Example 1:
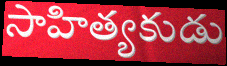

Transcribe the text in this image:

సాహిత్యకుడు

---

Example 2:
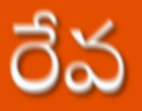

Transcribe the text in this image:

రేవ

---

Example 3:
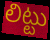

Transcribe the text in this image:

లిట్టు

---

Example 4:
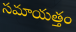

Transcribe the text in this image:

సమాయత్తం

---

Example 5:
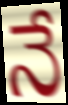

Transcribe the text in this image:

నే